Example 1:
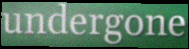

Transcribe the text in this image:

undergone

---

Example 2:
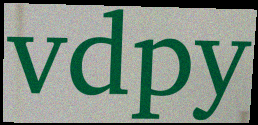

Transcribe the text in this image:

vdpy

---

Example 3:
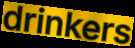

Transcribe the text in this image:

drinkers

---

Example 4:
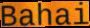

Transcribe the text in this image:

Bahai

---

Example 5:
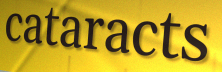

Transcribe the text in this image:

cataracts